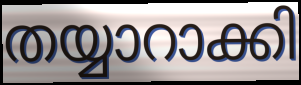
തയ്യാറാക്കി